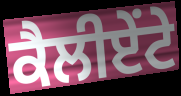
ਕੈਲੀਏਂਟੇ